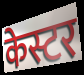
केस्टर